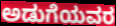
ಅಡುಗೆಯವರ